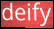
deify